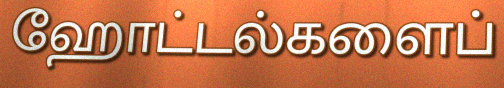
ஹோட்டல்களைப்